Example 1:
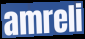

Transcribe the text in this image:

amreli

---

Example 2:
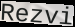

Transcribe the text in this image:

Rezvi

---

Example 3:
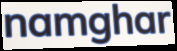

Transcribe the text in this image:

namghar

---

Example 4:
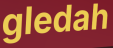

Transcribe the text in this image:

gledah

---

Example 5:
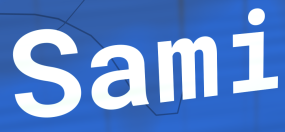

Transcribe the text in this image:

Sami